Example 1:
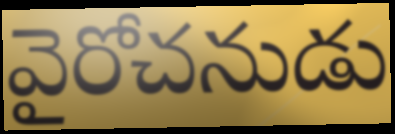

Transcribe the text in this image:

వైరోచనుడు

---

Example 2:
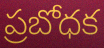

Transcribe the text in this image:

ప్రబోధక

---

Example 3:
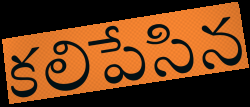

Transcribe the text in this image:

కలిపేసిన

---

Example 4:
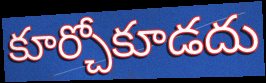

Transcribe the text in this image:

కూర్చోకూడదు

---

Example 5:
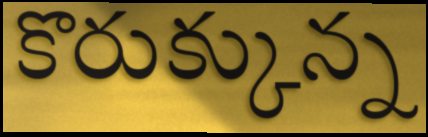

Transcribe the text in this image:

కొరుక్కున్న